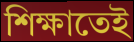
শিক্ষাতেই